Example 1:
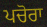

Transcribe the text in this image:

ਪਚੋਰਾ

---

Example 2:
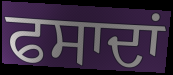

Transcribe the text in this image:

ਫਸਾਦਾਂ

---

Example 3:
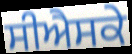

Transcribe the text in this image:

ਸੀਐਸਕੇ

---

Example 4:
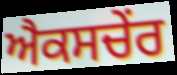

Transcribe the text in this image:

ਐਕਸਚੇਂਰ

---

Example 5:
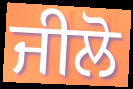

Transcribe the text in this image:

ਜੀਲੋ